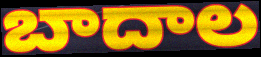
బాదాల